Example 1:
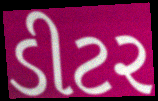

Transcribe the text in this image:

ડીટર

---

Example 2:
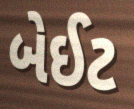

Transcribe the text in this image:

બેઈટ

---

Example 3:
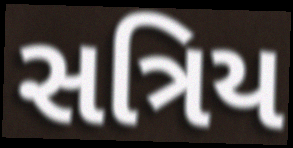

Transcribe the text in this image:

સત્રિય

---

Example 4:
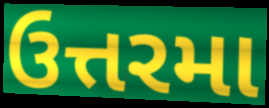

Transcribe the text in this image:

ઉત્તરમા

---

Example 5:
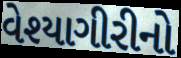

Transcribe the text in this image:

વેશ્યાગીરીનો